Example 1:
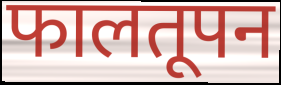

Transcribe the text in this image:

फालतूपन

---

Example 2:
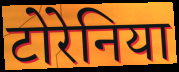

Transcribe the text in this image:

टोरेनिया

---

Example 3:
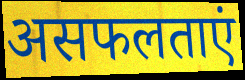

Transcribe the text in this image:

असफलताएं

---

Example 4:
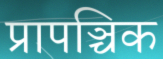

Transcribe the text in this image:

प्रापञ्चिक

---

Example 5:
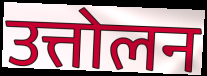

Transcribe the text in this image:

उत्तोलन